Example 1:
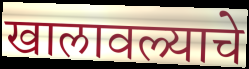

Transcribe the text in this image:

खालावल्याचे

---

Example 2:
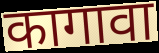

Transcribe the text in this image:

कागावा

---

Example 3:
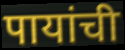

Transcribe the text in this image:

पायांची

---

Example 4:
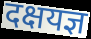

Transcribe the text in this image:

दक्षयज्ञ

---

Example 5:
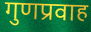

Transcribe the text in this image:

गुणप्रवाह